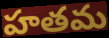
హతమ